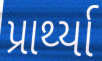
પ્રાર્થ્યા